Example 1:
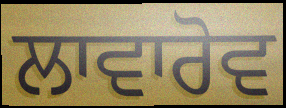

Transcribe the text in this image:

ਲਾਵਾਰੋਵ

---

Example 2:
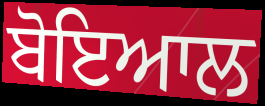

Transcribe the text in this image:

ਬੋਇਆਲ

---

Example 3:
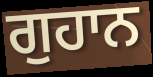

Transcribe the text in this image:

ਗੁਹਾਨ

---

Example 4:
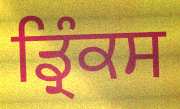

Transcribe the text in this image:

ਡ੍ਰਿੰਕਸ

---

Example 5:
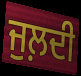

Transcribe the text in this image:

ਜੁਲ਼ਦੀ